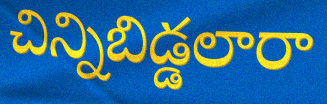
చిన్నిబిడ్డలారా